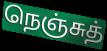
நெஞ்சுத்